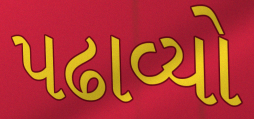
પઢાવ્યો